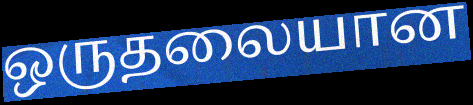
ஒருதலையான